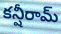
కన్షీరామ్